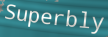
Superbly